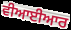
ਵੀਆਈਆਰ